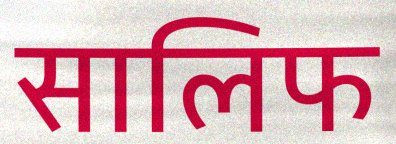
सालिफ